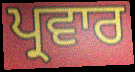
ਪ੍ਰਵਾਰ